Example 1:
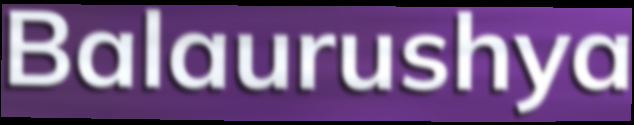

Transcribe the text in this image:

Balaurushya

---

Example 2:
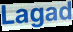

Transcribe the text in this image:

Lagad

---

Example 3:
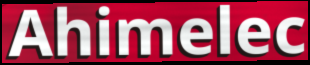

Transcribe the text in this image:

Ahimelec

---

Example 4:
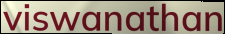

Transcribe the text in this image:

viswanathan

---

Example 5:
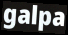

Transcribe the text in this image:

galpa